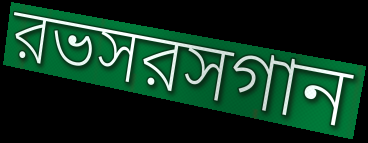
রভসরসগান